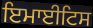
ਇਮਾਈਟਿਸ